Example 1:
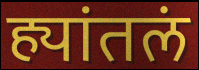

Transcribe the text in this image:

ह्यांतलं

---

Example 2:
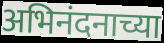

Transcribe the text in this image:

अभिनंदनाच्या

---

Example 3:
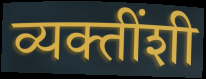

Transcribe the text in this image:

व्यक्तींशी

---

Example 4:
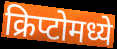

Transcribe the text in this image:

क्रिप्टोमध्ये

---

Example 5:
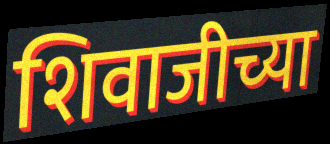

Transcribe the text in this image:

शिवाजीच्या